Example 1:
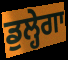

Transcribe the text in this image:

ਡੁਲ੍ਹੇਗਾ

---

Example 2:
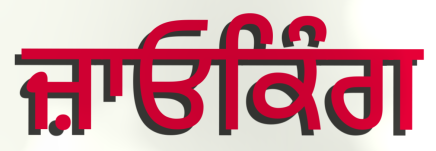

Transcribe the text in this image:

ਜ਼ਾਓਕਿੰਗ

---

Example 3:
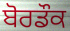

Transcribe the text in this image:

ਬੋਰਡੌਕ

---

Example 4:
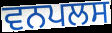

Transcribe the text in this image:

ਵਨਪਲਸ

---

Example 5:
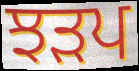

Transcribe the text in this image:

ਝੜਪ